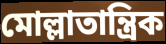
মোল্লাতান্ত্রিক